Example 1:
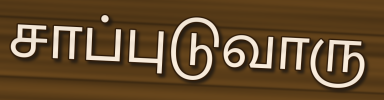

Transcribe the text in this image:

சாப்புடுவாரு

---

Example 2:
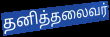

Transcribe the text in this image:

தனித்தலைவர்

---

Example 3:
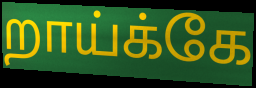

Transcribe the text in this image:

றாய்க்கே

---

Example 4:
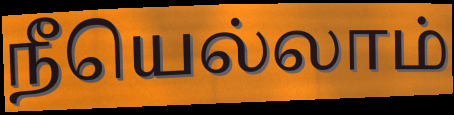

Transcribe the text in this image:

நீயெல்லாம்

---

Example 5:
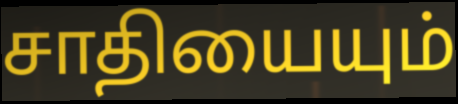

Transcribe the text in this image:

சாதியையும்